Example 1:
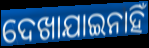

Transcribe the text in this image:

ଦେଖାଯାଇନାହିଁ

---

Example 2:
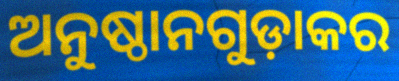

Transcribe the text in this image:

ଅନୁଷ୍ଠାନଗୁଡ଼ାକର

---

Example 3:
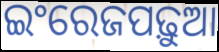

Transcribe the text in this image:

ଇଂରେଜପଢ଼ୁଆ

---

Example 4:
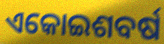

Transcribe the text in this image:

ଏକୋଇଶବର୍ଷ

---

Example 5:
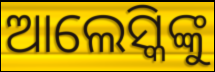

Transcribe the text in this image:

ଆଲେସ୍କିଙ୍କୁ